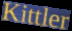
Kittler